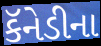
કૅનેડીના